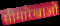
सीमारेखाओं